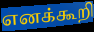
எனக்கூறி